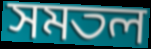
সমতল